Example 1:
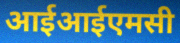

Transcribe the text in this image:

आईआईएमसी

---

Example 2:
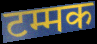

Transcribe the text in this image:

टम्मक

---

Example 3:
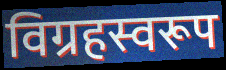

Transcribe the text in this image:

विग्रहस्वरूप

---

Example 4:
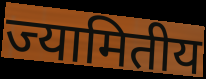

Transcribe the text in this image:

ज्यामितीय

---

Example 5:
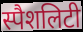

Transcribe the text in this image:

स्पैशलिटी